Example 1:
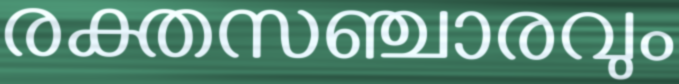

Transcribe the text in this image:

രക്തസഞ്ചാരവും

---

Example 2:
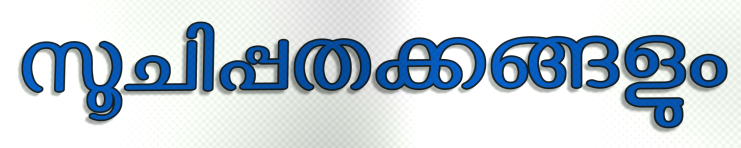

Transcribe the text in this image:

സൂചിപ്പതക്കങ്ങളും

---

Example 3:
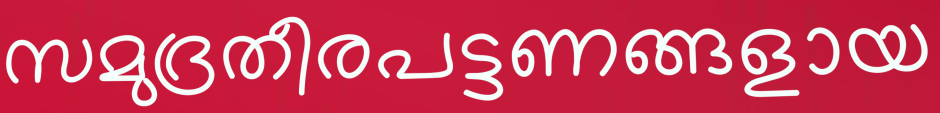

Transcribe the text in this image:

സമുദ്രതീരപട്ടണങ്ങളായ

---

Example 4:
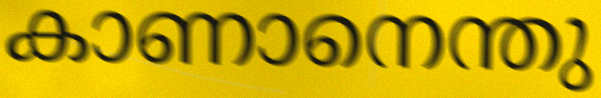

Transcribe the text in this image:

കാണാനെന്തു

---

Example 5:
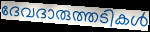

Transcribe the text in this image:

ദേവദാരുത്തടികൾ